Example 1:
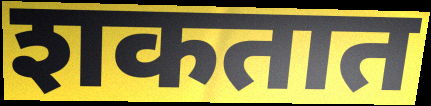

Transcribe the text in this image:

शकतात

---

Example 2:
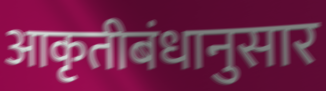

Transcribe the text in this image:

आकृतीबंधानुसार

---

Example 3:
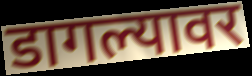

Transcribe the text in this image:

डागल्यावर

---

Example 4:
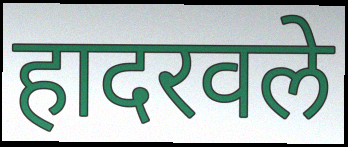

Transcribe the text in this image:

हादरवले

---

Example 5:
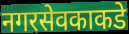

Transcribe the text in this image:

नगरसेवकाकडे